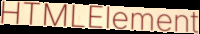
HTMLElement